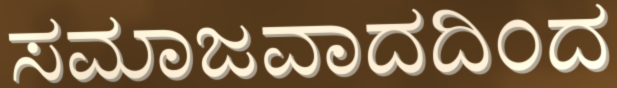
ಸಮಾಜವಾದದಿಂದ